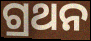
ଗ୍ରଥନ